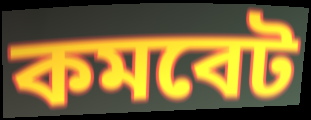
কমবেট